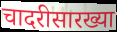
चादरीसारख्या